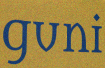
guni